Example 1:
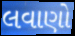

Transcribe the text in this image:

લવાણો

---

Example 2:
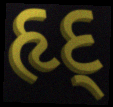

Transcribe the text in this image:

હૃદ્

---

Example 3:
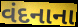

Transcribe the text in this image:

વંદનાના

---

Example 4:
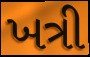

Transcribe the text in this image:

ખત્રી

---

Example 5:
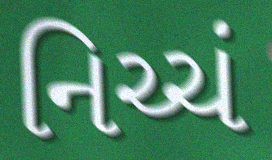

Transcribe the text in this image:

નિચ્ચં